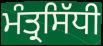
ਮੰਤ੍ਰਸਿੱਧੀ